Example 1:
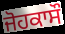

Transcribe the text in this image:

ਜੋਹਕਾਸੌ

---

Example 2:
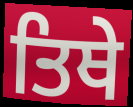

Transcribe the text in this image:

ਤਿਥੇ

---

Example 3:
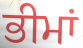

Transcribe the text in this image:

ਭੀਮਾਂ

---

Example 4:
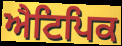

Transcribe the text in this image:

ਐਟਿਪਿਕ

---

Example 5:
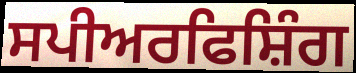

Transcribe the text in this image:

ਸਪੀਅਰਫਿਸ਼ਿੰਗ